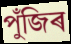
পুঁজিৰ